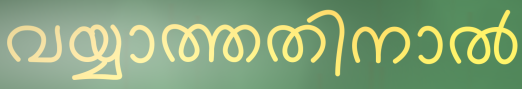
വയ്യാത്തതിനാൽ